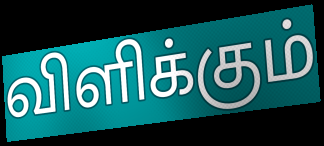
விளிக்கும்